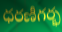
ధరణీగర్భ